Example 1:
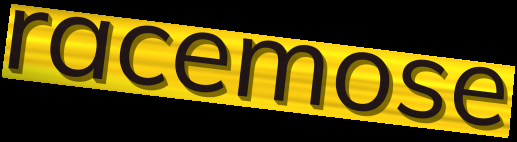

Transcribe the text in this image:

racemose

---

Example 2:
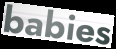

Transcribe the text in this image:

babies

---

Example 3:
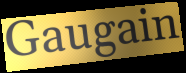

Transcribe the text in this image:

Gaugain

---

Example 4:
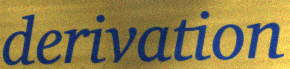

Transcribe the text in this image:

derivation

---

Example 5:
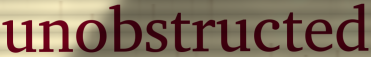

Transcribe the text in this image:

unobstructed